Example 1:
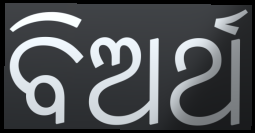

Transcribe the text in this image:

ବିଅର୍ଥ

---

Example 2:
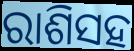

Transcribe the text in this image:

ରାଶିସହ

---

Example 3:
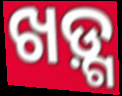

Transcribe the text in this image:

ଖଡ଼୍ଗ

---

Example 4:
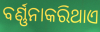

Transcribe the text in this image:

ବର୍ଣ୍ଣନାକରିଥାଏ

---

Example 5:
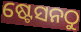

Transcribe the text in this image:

ଷ୍ଟେସନଠୁ